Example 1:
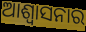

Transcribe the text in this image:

ଆଶ୍ୱାସନାର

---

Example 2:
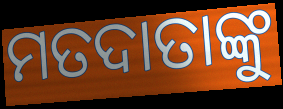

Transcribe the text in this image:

ମତଦାତାଙ୍କୁ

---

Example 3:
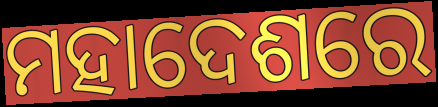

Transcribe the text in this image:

ମହାଦେଶରେ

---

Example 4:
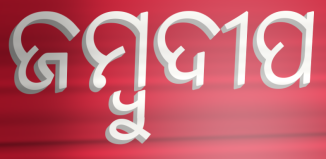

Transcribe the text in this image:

ଜମ୍ବୁଦୀପ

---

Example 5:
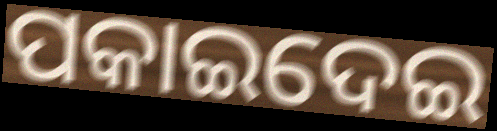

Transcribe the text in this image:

ପକାଇଦେଇ